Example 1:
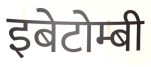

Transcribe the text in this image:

इबेटोम्बी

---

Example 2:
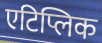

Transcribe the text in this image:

एटिप्लिक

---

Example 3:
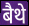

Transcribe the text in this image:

बैथे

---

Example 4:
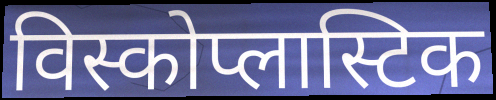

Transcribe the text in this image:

विस्कोप्लास्टिक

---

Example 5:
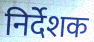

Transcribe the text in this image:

निर्देशक